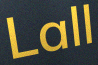
Lall